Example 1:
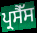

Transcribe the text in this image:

ਪ੍ਰਸੈੱਸ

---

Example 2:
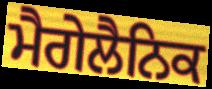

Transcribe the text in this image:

ਮੈਗੇਲੈਨਿਕ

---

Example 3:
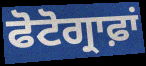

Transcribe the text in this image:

ਫੋਟੋਗ੍ਰਾਫ਼ਾਂ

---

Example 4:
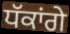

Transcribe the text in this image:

ਧੱਕਾਂਗੇ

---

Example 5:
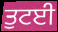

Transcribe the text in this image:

ਤੁਟਈ